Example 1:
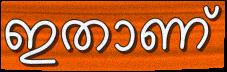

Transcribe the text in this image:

ഇതാണ്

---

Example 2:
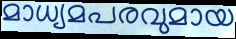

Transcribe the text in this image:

മാധ്യമപരവുമായ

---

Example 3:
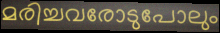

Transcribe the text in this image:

മരിച്ചവരോടുപോലും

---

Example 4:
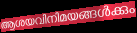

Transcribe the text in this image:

ആശയവിനിമയങ്ങൾക്കും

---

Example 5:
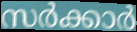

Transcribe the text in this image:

സർക്കാർ